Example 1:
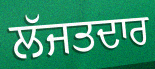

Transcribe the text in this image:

ਲੱਜਤਦਾਰ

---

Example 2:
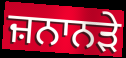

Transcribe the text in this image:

ਜ਼ਨਾਨੜੇ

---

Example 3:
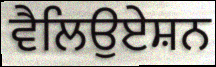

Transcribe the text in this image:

ਵੈਲਿਉਏਸ਼ਨ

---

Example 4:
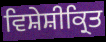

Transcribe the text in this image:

ਵਿਸ਼ੇਸ਼ੀਕ੍ਰਿਤ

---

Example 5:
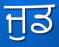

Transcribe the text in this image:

ਜੁਡ